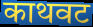
काथवट